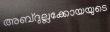
അബ്ദുല്ലക്കോയയുടെ